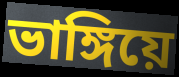
ভাঙ্গিয়ে